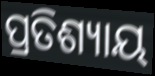
ପ୍ରତିଶ୍ୟାୟ